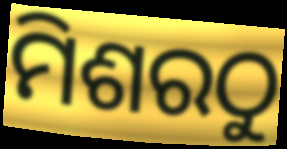
ମିଶରଠୁ